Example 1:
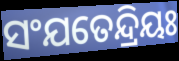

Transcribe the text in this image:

ସଂଯତେନ୍ଦ୍ରିୟଃ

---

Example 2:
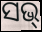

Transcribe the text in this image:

ସଭ୍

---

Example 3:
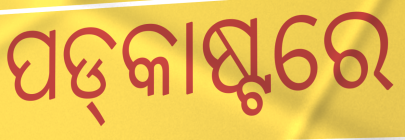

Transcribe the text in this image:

ପଡ୍‌କାଷ୍ଟରେ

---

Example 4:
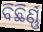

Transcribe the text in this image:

ବିଛିର୍ଣ୍ଣ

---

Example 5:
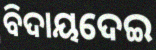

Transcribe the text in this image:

ବିଦାୟଦେଇ